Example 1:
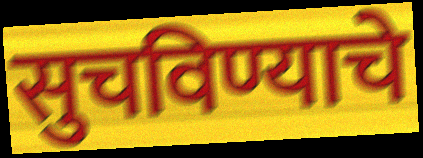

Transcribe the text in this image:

सुचविण्याचे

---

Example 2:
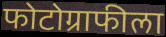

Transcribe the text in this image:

फोटोग्राफीला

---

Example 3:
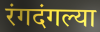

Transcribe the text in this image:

रंगदंगल्या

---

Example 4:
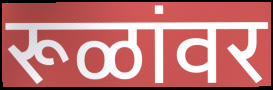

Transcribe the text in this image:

रूळांवर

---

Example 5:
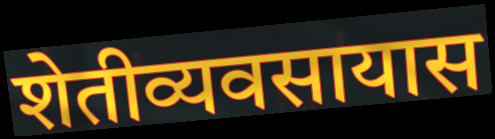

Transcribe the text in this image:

शेतीव्यवसायास